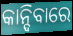
କାନ୍ଦିବାରେ